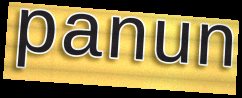
panun